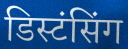
डिस्टंसिंग